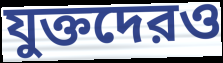
যুক্তদেরও